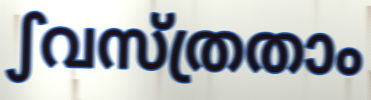
ഽവസ്ത്രതാം